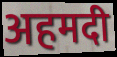
अहमदी